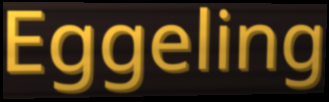
Eggeling